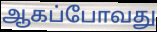
ஆகப்போவது